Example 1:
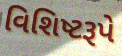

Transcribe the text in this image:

વિશિષ્ટરૂપે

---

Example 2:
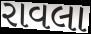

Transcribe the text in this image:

રાવલા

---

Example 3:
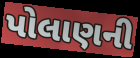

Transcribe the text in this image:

પોલાણની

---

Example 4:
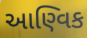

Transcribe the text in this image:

આણ્વિક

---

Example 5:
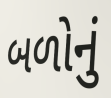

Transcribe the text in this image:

બળોનું